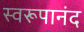
स्वरूपानंद